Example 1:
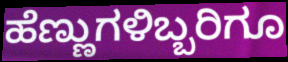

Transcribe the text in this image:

ಹೆಣ್ಣುಗಳಿಬ್ಬರಿಗೂ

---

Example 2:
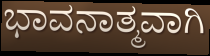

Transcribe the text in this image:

ಭಾವನಾತ್ಮವಾಗಿ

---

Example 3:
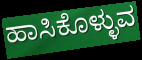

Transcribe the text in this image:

ಹಾಸಿಕೊಳ್ಳುವ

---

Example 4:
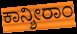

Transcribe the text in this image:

ಕಾನ್ಶೀರಾಂ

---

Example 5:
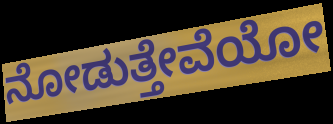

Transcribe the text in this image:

ನೋಡುತ್ತೇವೆಯೋ